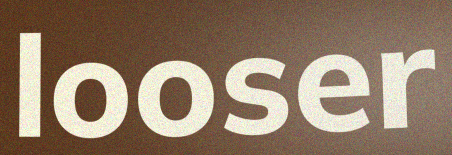
looser